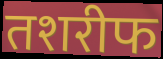
तशरीफ